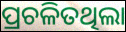
ପ୍ରଚଳିତଥିଲା